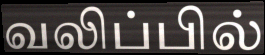
வலிப்பில்